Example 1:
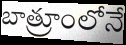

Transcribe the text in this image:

బాత్రూంలోనే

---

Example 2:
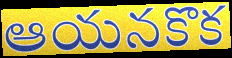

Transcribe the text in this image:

ఆయనకొక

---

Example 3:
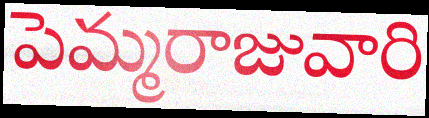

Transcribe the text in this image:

పెమ్మరాజువారి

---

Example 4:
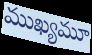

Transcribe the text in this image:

ముఖ్యమూ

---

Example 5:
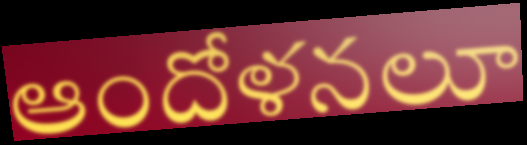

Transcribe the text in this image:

ఆందోళనలూ